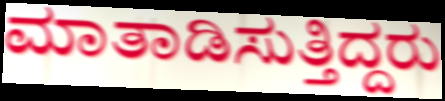
ಮಾತಾಡಿಸುತ್ತಿದ್ದರು